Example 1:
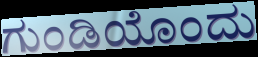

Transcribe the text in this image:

ಗುಂಡಿಯೊಂದು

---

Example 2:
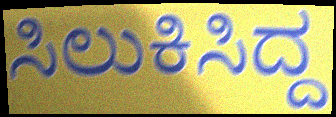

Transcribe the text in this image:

ಸಿಲುಕಿಸಿದ್ದ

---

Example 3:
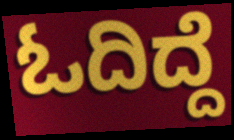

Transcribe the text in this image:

ಓದಿದ್ದೆ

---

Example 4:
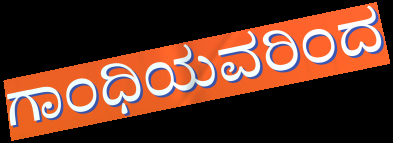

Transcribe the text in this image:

ಗಾಂಧಿಯವರಿಂದ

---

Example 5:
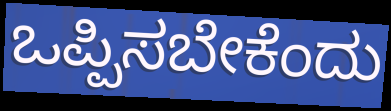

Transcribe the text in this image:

ಒಪ್ಪಿಸಬೇಕೆಂದು